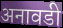
अनावडी